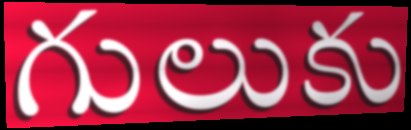
గులుకు